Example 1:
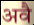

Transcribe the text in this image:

अवै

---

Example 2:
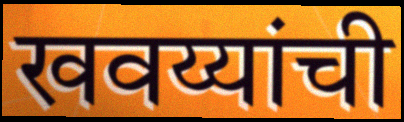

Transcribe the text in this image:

खवय्यांची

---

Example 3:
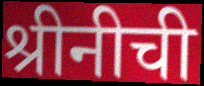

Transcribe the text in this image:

श्रीनीची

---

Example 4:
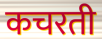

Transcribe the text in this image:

कचरती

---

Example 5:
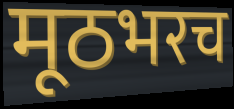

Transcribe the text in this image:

मूठभरच